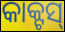
କାକ୍ଟସ୍